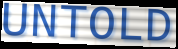
UNTOLD